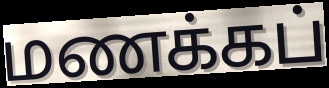
மணக்கப்